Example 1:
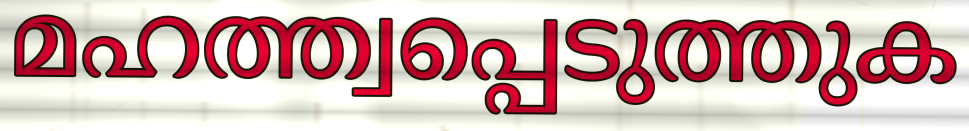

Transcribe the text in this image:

മഹത്ത്വപ്പെടുത്തുക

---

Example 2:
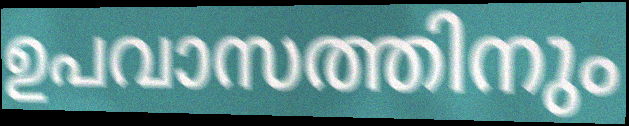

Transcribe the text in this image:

ഉപവാസത്തിനും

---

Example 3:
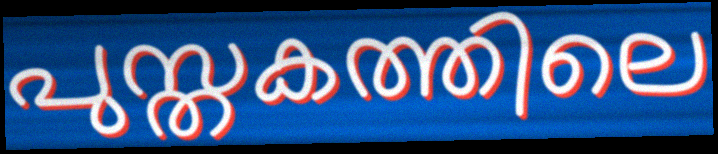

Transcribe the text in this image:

പുസ്തകത്തിലെ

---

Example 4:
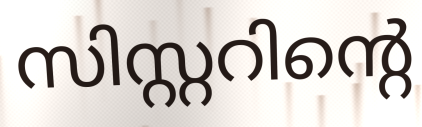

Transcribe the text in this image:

സിസ്റ്ററിന്റെ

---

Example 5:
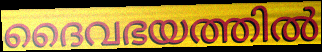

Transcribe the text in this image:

ദൈവഭയത്തിൽ